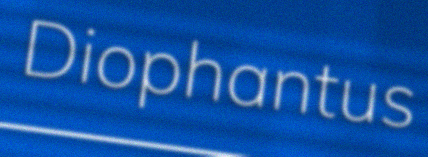
Diophantus